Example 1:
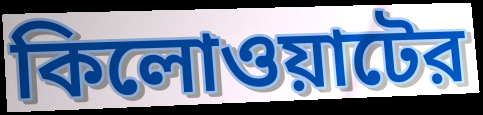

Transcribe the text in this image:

কিলোওয়াটের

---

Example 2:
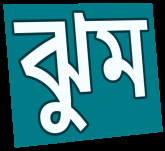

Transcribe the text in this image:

ঝুম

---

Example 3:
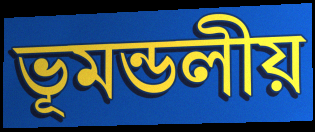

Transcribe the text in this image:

ভূমন্ডলীয়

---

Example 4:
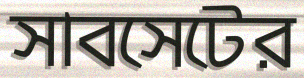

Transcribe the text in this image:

সাবসেটের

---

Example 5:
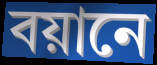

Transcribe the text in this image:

বয়ানে